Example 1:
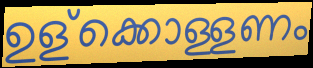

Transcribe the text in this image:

ഉള്ക്കൊള്ളണം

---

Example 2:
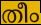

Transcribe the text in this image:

തീം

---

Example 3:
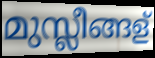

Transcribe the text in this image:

മുസ്ലീങ്ങള്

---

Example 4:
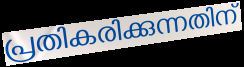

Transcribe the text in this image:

പ്രതികരിക്കുന്നതിന്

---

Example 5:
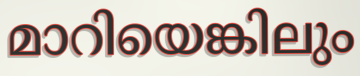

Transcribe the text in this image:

മാറിയെങ്കിലും